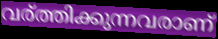
വര്ത്തിക്കുന്നവരാണ്